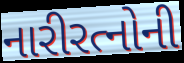
નારીરત્નોની